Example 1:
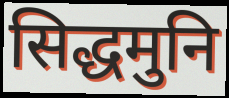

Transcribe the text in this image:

सिद्धमुनि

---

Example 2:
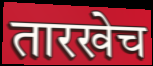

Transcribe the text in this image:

तारखेच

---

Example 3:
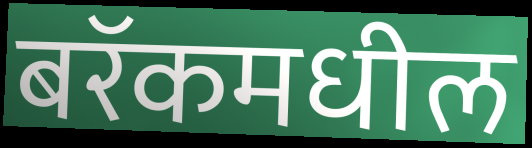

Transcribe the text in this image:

बरॅकमधील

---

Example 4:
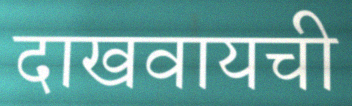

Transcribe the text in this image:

दाखवायची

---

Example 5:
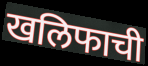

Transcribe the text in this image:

खलिफाची